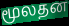
மூலதன